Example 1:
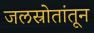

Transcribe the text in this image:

जलस्रोतांतून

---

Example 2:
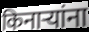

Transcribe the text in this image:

किनाऱ्यांना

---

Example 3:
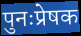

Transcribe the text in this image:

पुनःप्रेषक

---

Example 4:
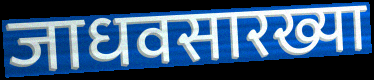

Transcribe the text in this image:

जाधवसारख्या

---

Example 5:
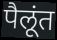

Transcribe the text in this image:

पैलूंत